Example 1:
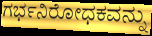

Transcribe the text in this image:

ಗರ್ಭನಿರೋಧಕವನ್ನು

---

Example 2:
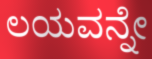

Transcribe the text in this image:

ಲಯವನ್ನೇ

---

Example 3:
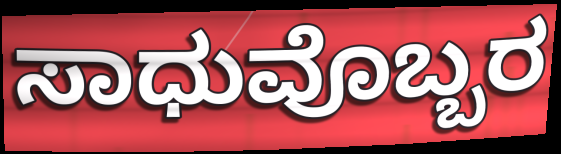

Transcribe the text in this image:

ಸಾಧುವೊಬ್ಬರ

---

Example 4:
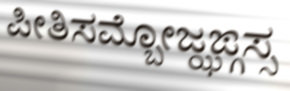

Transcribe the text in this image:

ಪೀತಿಸಮ್ಬೋಜ್ಝಙ್ಗಸ್ಸ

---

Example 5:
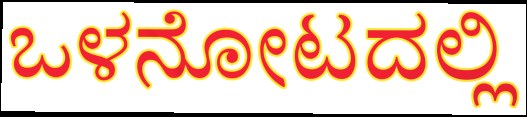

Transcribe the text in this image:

ಒಳನೋಟದಲ್ಲಿ